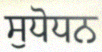
ਸੁਧੋਧਨ